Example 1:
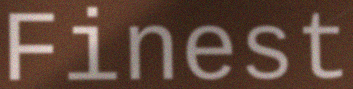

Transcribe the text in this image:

Finest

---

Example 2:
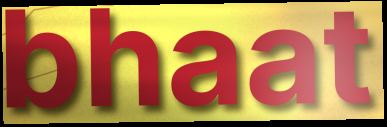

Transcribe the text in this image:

bhaat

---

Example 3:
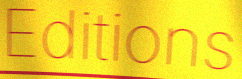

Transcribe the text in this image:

Editions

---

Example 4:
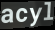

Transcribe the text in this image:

acyl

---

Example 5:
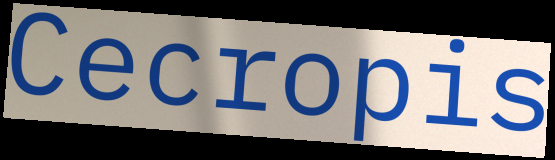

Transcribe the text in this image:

Cecropis